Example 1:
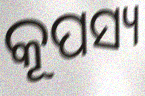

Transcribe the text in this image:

କୂପସ୍ୟ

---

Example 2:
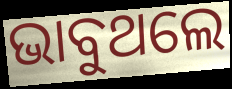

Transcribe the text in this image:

ଭାବୁଥଲେ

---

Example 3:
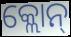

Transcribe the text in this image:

କ୍ଲୋନ୍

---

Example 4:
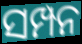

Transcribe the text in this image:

ସମ୍ପନ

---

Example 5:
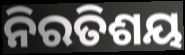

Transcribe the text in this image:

ନିରତିଶୟ